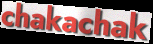
chakachak